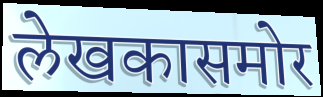
लेखकासमोर